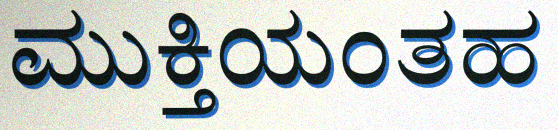
ಮುಕ್ತಿಯಂತಹ